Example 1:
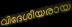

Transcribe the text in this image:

വിദേശീയരായ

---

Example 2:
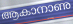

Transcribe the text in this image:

ആകാനാണു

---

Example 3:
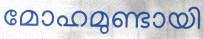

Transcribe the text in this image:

മോഹമുണ്ടായി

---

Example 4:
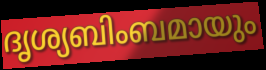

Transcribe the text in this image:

ദൃശ്യബിംബമായും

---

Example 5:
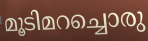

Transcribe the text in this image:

മൂടിമറച്ചൊരു